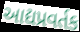
આદ્યપ્રવર્તક